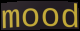
mood